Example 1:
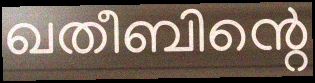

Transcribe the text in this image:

ഖതീബിന്റെ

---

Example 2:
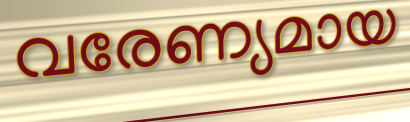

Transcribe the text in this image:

വരേണ്യമായ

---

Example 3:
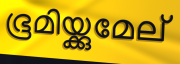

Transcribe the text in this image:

ഭൂമിയ്ക്കുമേല്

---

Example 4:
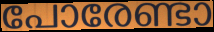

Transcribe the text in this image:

പോരേണ്ടാ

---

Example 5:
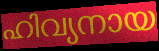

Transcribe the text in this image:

ഹിവ്യനായ